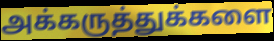
அக்கருத்துக்களை